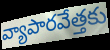
వ్యాపారవేత్తకు